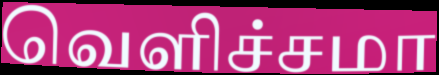
வெளிச்சமா